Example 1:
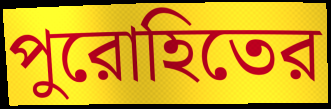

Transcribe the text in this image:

পুরোহিতের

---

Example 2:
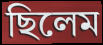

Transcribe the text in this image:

ছিলেম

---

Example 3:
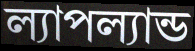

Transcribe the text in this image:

ল্যাপল্যান্ড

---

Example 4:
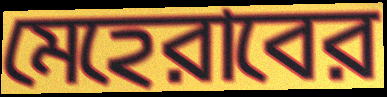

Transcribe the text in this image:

মেহেরাবের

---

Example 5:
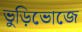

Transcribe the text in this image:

ভুড়িভোজে